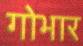
गोभार